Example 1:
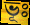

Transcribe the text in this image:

ভূঃ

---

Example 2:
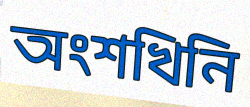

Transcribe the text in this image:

অংশখিনি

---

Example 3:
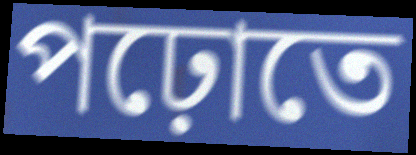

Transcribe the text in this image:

পঢ়োতে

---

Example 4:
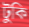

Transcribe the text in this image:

টুকি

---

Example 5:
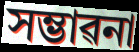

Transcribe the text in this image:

সম্ভাৱনা